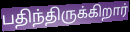
பதிந்திருக்கிறார்